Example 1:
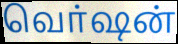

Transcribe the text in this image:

வெர்ஷன்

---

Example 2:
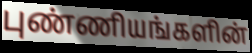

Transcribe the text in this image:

புண்ணியங்களின்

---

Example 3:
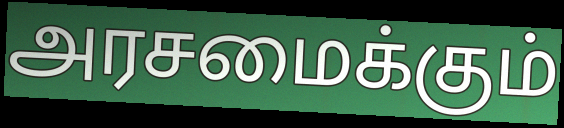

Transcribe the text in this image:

அரசமைக்கும்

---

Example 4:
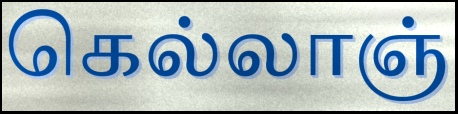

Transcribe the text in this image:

கெல்லாஞ்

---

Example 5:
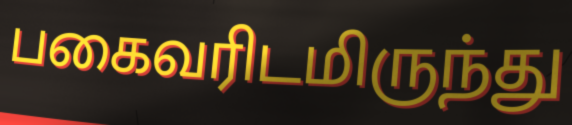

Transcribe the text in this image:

பகைவரிடமிருந்து